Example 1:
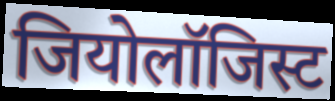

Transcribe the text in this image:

जियोलॉजिस्ट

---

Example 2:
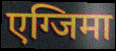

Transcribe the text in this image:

एग्जिमा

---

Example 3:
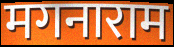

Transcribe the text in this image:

मगनाराम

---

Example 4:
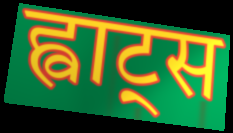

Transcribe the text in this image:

ह्वाट्स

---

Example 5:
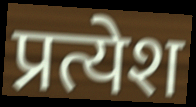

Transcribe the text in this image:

प्रत्येश